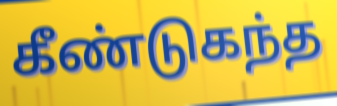
கீண்டுகந்த